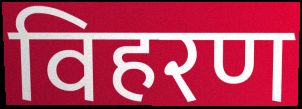
विहरण